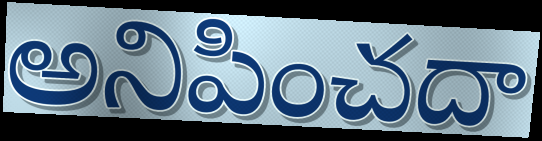
అనిపించదా